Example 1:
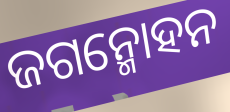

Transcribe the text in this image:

ଜଗନ୍ମୋହନ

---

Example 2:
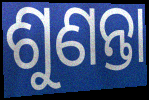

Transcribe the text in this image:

ଶୁଣନ୍ତା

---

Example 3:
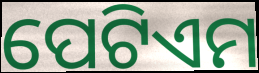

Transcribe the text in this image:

ପେଟିଏମ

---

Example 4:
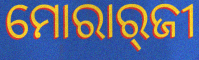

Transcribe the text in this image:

ମୋରାର୍‌ଜୀ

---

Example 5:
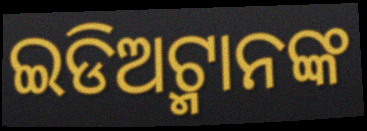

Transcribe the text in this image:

ଇଡିଅଟ୍ମାନଙ୍କ